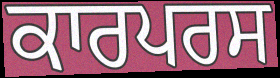
ਕਾਰਪਰਸ